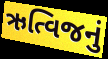
ઋત્વિજનું